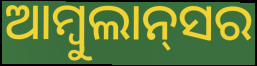
ଆମ୍ବୁଲାନ୍‌ସର